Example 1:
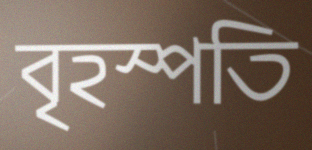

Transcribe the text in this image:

বৃহস্পতি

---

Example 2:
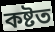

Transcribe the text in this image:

কষ্টত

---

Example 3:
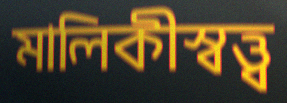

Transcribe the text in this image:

মালিকীস্বত্ত্ব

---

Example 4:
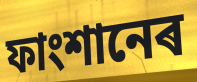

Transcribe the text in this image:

ফাংশানেৰ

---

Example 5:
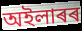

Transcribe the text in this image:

অইলাৰৰ